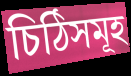
চিঠিসমূহ